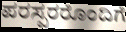
ಪರಸ್ಪರರೊಂದಿಗೆ